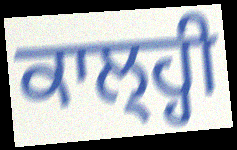
ਕਾਲ੍ਹ੍ਹੀ